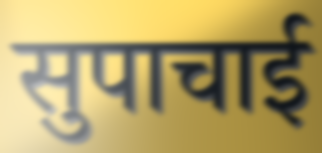
सुपाचाई